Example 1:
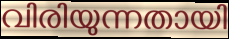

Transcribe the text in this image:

വിരിയുന്നതായി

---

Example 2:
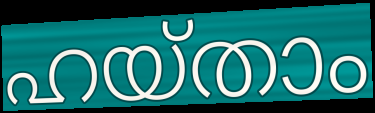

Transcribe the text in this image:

ഹയ്താം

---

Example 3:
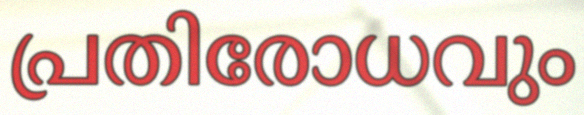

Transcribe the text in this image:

പ്രതിരോധവും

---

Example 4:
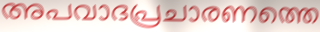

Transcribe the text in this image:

അപവാദപ്രചാരണത്തെ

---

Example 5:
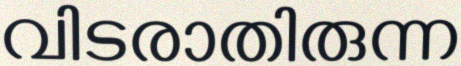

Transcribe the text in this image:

വിടരാതിരുന്ന